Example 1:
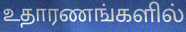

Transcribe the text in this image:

உதாரணங்களில்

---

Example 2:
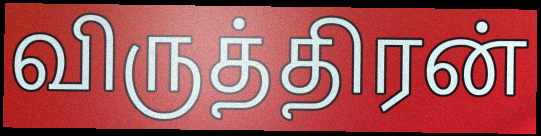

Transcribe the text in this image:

விருத்திரன்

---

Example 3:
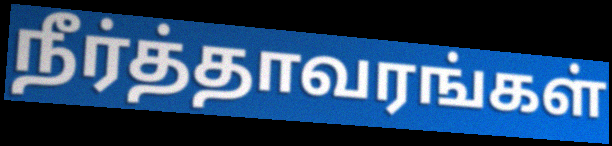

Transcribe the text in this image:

நீர்த்தாவரங்கள்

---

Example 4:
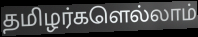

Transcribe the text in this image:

தமிழர்களெல்லாம்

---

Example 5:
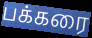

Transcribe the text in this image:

பக்கரை